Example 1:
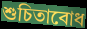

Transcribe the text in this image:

শুচিতাবোধ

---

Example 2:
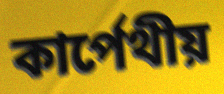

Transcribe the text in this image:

কার্পেথীয়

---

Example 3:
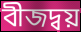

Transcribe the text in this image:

বীজদ্বয়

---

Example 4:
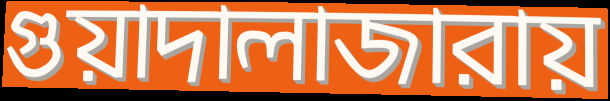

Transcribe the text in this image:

গুয়াদালাজারায়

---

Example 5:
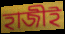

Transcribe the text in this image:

হাজীই